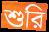
শুরি